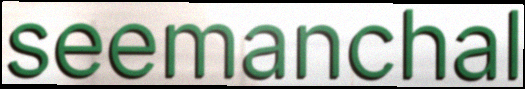
seemanchal